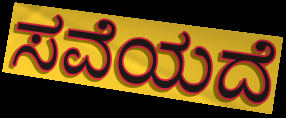
ಸವೆಯದೆ